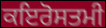
ਕਇਰੋਸਤਮੀ